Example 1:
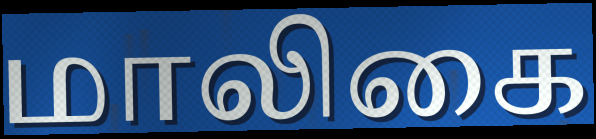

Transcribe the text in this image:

மாலிகை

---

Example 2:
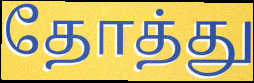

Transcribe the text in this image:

தோத்து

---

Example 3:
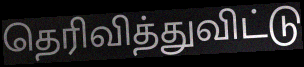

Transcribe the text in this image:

தெரிவித்துவிட்டு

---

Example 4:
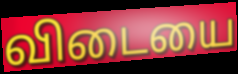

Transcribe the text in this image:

விடையை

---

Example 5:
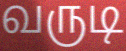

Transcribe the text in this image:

வருடி